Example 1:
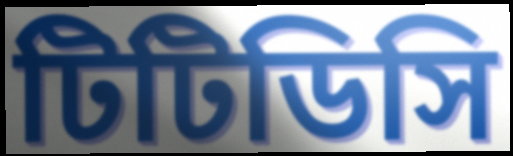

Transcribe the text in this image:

টিটিডিসি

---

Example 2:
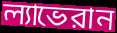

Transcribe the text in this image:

ল্যাভেরান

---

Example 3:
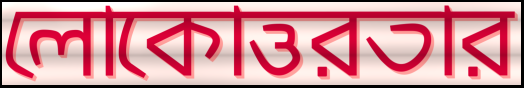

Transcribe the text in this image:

লোকোত্তরতার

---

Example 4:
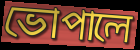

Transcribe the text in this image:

ভোপালে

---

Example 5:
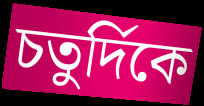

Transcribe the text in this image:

চতুর্দিকে